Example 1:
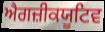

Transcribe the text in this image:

ਐਗਜ਼ੀਕਯੂਟਿਵ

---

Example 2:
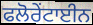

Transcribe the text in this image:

ਫਲੋਰੇਂਟਾਈਨ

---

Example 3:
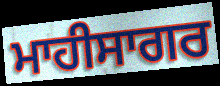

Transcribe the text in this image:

ਮਾਹੀਸਾਗਰ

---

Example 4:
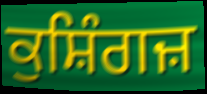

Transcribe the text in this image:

ਕੁਸ਼ਿੰਗਜ਼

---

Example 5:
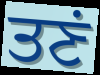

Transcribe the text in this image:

ਤਣਂ